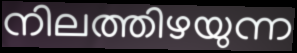
നിലത്തിഴയുന്ന